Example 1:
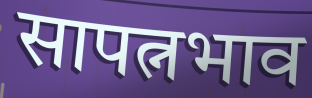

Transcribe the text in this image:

सापत्नभाव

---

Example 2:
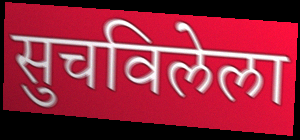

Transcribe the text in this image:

सुचविलेला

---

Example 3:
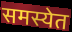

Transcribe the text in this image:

समस्येत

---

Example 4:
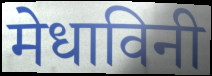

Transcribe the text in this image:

मेधाविनी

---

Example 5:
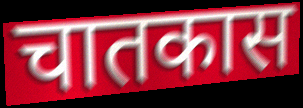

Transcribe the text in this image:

चातकास